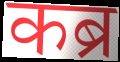
कब्र